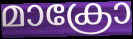
മാക്രോ